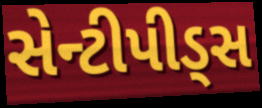
સેન્ટીપીડ્સ